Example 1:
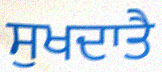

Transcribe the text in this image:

ਸੁਖਦਾਤੈ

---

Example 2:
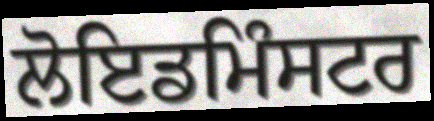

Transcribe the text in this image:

ਲੋਇਡਮਿੰਸਟਰ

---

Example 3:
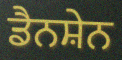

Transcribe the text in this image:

ਡੈਨਸ਼ੇਨ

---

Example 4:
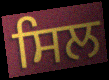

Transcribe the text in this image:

ਸਿਲ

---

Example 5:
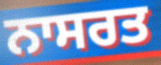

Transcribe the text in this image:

ਨਾਸਰਤ